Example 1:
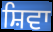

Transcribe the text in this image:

ਸ਼ਿਵਾ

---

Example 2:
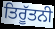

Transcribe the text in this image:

ਤਿਰੂੱਤਨੀ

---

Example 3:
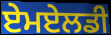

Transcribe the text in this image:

ਏਮਏਲਡੀ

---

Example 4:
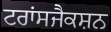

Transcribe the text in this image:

ਟਰਾਂਸਜੈਕਸ਼ਨ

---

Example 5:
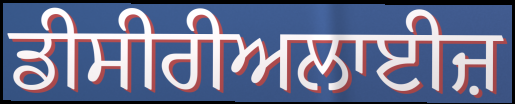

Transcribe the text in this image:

ਡੀਸੀਰੀਅਲਾਈਜ਼